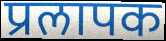
प्रलापक